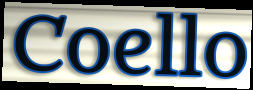
Coello